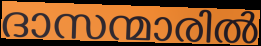
ദാസന്മാരിൽ